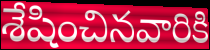
శేషించినవారికి